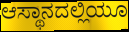
ಆಸ್ಥಾನದಲ್ಲಿಯೂ